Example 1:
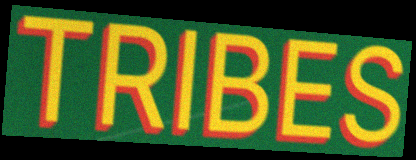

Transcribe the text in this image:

TRIBES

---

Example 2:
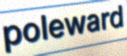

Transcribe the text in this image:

poleward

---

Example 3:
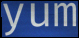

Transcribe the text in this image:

yum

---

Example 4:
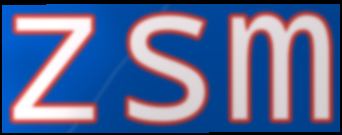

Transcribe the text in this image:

zsm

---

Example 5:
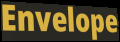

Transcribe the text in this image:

Envelope